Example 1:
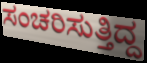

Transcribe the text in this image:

ಸಂಚರಿಸುತ್ತಿದ್ದ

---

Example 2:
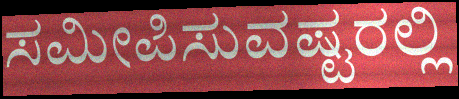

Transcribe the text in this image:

ಸಮೀಪಿಸುವಷ್ಟರಲ್ಲಿ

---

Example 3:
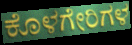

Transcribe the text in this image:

ಕೊಳಗೇರಿಗಳ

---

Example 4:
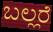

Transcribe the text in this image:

ಬಲ್ಲರೆ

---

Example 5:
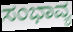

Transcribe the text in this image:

ಸಂಭಾವ್ಯ